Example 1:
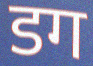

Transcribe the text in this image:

डग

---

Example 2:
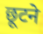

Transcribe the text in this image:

छूटने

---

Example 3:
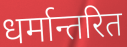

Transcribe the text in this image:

धर्मान्तरित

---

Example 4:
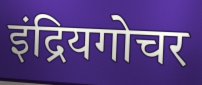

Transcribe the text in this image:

इंद्रियगोचर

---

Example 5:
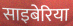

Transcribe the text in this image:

साइबेरिया